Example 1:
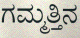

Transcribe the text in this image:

ಗಮ್ಮತ್ತಿನ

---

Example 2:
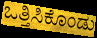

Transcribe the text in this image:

ಒತ್ತಿಸಿಕೊಂಡು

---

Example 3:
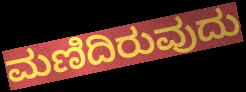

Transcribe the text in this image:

ಮಣಿದಿರುವುದು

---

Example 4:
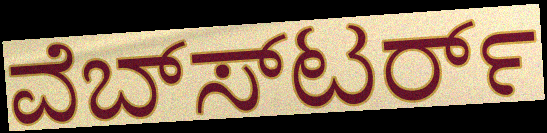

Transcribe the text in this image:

ವೆಬ್ಸ್‍ಟರ್ರ್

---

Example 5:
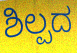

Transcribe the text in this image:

ಶಿಲ್ಪದ